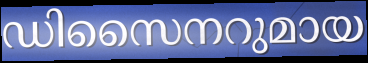
ഡിസൈനറുമായ